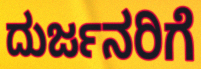
ದುರ್ಜನರಿಗೆ